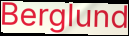
Berglund